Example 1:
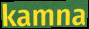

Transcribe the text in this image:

kamna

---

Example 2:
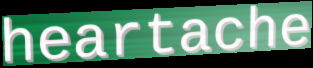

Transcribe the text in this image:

heartache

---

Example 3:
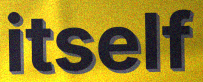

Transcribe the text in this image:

itself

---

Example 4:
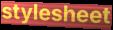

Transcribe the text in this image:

stylesheet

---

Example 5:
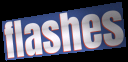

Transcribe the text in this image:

flashes